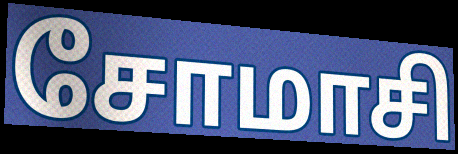
சோமாசி